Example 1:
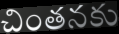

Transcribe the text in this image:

చింతనకు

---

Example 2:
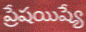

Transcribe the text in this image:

ప్రేషయిష్యే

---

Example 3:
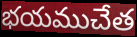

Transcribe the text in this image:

భయముచేత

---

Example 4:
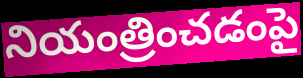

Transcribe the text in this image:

నియంత్రించడంపై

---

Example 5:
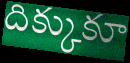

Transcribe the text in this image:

దిక్కుకూ